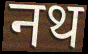
नथ